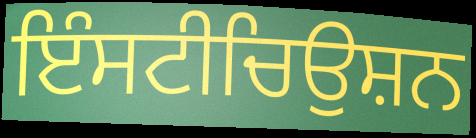
ਇੰਸਟੀਚਿਉਸ਼ਨ